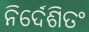
ନିର୍ଦେଶିତଂ